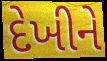
દેખીને